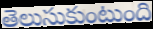
తెలుసుకుంటుంది